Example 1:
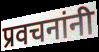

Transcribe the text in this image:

प्रवचनांनी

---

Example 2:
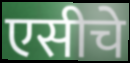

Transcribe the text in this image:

एसीचे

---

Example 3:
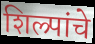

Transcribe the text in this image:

शिल्पांचे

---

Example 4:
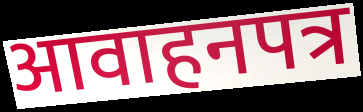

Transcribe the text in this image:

आवाहनपत्र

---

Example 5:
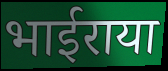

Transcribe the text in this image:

भाईराया